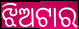
ଝିଅଟାର